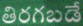
తిరగబడే